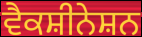
ਵੈਕਸ਼ੀਨੇਸ਼ਨ